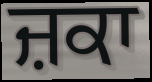
ਜ਼ਕਾ